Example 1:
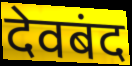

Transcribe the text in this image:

देवबंद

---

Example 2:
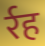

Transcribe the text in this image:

र्रह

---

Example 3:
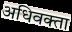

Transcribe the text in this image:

अधिवक्ता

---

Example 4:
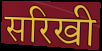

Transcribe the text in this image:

सरिखी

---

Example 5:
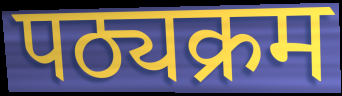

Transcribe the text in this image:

पठ्यक्रम